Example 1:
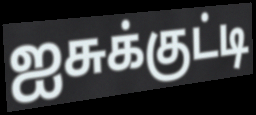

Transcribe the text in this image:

ஐசுக்குட்டி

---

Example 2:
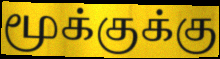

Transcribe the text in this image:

மூக்குக்கு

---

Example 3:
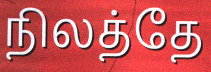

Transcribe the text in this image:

நிலத்தே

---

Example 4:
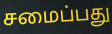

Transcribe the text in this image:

சமைப்பது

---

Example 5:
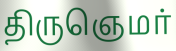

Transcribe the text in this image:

திருஞெமர்